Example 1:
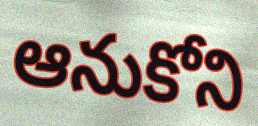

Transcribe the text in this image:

ఆనుకోని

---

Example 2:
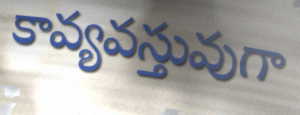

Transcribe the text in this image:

కావ్యవస్తువుగా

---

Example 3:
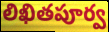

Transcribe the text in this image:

లిఖితపూర్వ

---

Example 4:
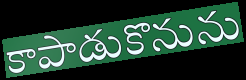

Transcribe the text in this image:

కాపాడుకొనును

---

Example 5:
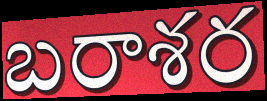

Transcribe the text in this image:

బరాశర